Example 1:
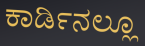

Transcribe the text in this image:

ಕಾರ್ಡಿನಲ್ಲೂ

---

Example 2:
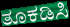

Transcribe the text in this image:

ತೂಕಡಿಸಿ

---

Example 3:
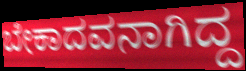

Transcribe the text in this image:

ಬೇಕಾದವನಾಗಿದ್ದ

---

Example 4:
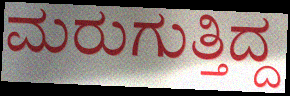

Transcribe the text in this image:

ಮರುಗುತ್ತಿದ್ದ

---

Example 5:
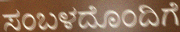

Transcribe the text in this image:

ಸಂಬಳದೊಂದಿಗೆ